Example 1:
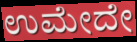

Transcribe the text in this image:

ಉಮೇದೇ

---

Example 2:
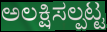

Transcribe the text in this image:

ಅಲಕ್ಷಿಸಲ್ಪಟ್ಟ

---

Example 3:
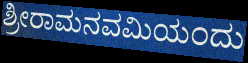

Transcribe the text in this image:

ಶ್ರೀರಾಮನವಮಿಯಂದು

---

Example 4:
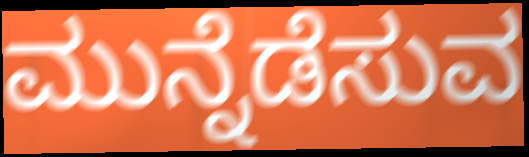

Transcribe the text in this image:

ಮುನ್ನೆಡೆಸುವ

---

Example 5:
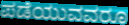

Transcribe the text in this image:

ಪಡೆಯುವವರೂ